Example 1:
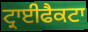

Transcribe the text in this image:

ਟ੍ਰਾਈਫੈਕਟਾ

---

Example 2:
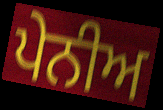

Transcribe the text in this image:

ਪੇਨੀਅ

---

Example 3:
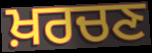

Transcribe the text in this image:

ਖ਼ਰਚਣ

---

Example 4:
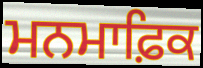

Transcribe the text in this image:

ਮਨਮਾਫ਼ਿਕ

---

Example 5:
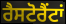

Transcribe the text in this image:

ਰੈਸਟੋਰੈਂਟਾਂ